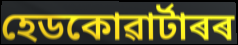
হেডকোৱাৰ্টাৰৰ